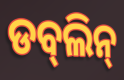
ଡବ୍‌ଲିନ୍